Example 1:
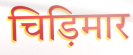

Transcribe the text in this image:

चिड़िमार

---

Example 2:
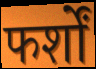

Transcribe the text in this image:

फर्शों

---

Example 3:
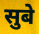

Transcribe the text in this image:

सुबे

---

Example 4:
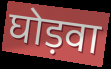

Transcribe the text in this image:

घोड़वा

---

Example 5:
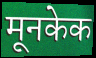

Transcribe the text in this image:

मूनकेक